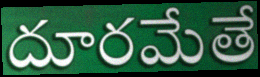
దూరమేతే